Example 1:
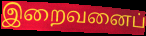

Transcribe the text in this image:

இறைவனைப்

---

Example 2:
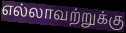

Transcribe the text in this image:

எல்லாவற்றுக்கு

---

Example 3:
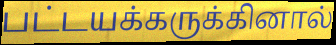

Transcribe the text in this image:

பட்டயக்கருக்கினால்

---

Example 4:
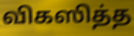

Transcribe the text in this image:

விகஸித்த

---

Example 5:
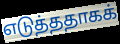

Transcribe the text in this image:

எடுத்ததாகக்